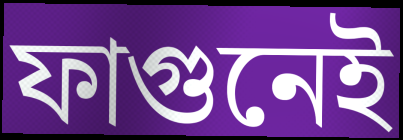
ফাগুনেই